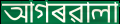
আগৰৱালা